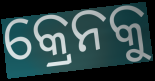
କ୍ରେନକୁ